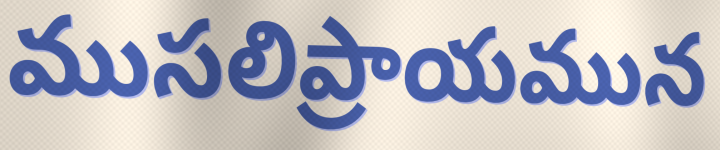
ముసలిప్రాయమున